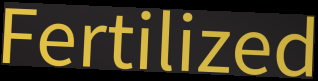
Fertilized